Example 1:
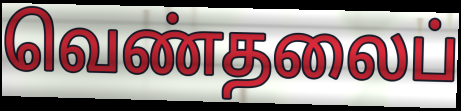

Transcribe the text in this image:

வெண்தலைப்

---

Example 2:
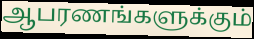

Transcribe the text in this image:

ஆபரணங்களுக்கும்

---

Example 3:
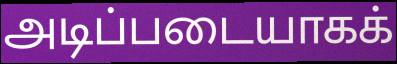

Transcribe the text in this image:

அடிப்படையாகக்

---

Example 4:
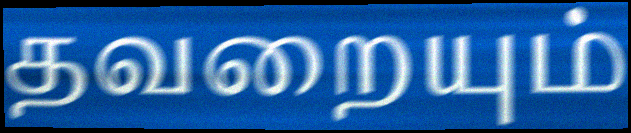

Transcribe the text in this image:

தவறையும்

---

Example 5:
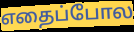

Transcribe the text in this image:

எதைப்போல